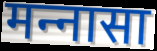
मन्नासा